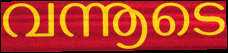
വന്നൂടെ